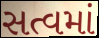
સત્વમાં